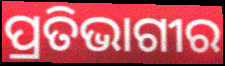
ପ୍ରତିଭାଗୀର